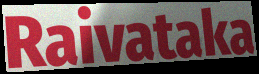
Raivataka